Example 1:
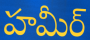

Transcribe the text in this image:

హమీర్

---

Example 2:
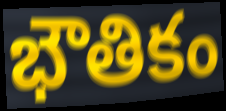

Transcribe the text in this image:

భౌతికం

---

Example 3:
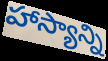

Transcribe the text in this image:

హాస్యాన్ని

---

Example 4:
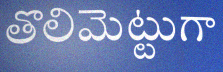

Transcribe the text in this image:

తొలిమెట్టుగా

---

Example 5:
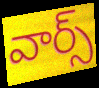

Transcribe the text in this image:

వార్స్